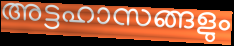
അട്ടഹാസങ്ങളും